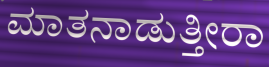
ಮಾತನಾಡುತ್ತೀರಾ